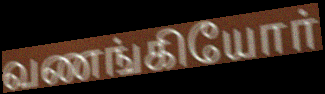
வணங்கியோர்